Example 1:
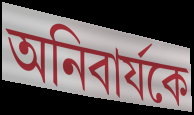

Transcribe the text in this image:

অনিবার্যকে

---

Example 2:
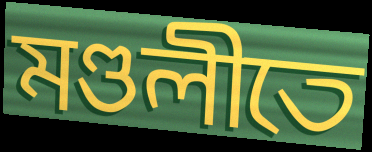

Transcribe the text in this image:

মণ্ডলীতে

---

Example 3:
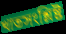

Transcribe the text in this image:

খাতসংশ্লিষ্ট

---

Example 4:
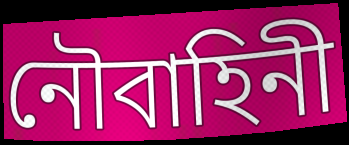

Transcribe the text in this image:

নৌবাহিনী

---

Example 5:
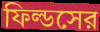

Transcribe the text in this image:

ফিল্ডসের